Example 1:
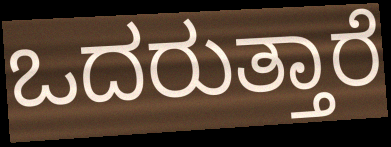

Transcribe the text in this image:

ಒದರುತ್ತಾರೆ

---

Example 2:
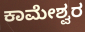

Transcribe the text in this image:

ಕಾಮೇಶ್ವರ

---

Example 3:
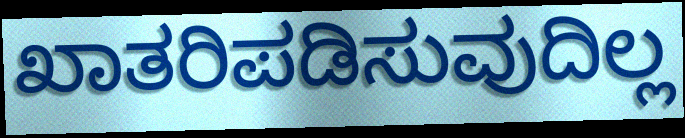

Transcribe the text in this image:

ಖಾತರಿಪಡಿಸುವುದಿಲ್ಲ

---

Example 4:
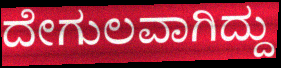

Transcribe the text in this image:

ದೇಗುಲವಾಗಿದ್ದು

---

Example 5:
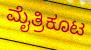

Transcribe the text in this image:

ಮೈತ್ರಿಕೂಟ